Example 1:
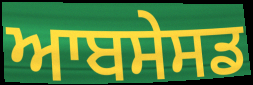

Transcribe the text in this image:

ਆਬਸੇਸਡ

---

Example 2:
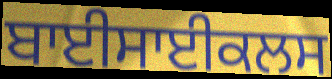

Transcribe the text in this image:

ਬਾਈਸਾਈਕਲਸ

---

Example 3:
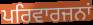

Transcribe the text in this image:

ਪਰਿਵਾਰਜਨਾਂ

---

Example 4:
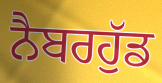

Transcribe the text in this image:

ਨੈਬਰਹੁੱਡ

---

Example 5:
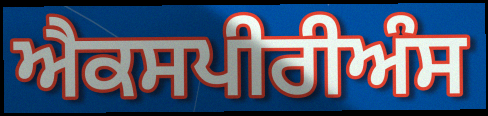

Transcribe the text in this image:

ਐਕਸਪੀਰੀਅੰਸ